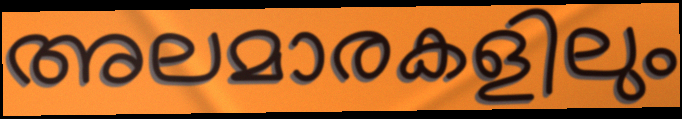
അലമാരകളിലും